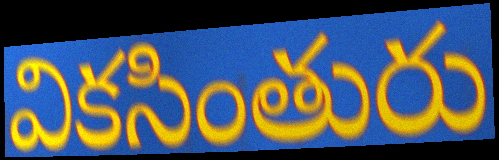
వికసింతురు